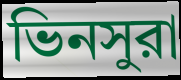
ভিনসুরা